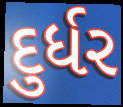
દુર્ધર